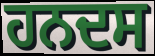
ਹਨਦਸ